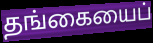
தங்கையைப்